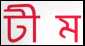
টীম